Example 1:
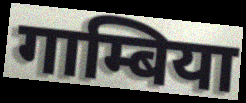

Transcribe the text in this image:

गाम्बिया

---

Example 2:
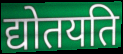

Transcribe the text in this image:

द्योतयति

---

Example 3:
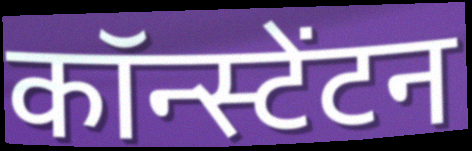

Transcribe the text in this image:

कॉन्स्टेंटन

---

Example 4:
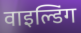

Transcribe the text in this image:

वाइल्डिंग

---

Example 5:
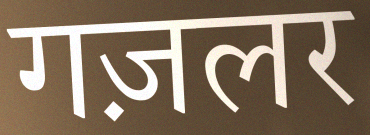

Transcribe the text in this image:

गज़लर